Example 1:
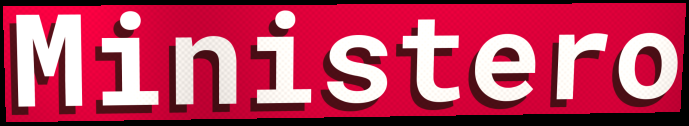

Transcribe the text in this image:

Ministero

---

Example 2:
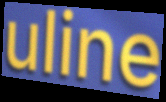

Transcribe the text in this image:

uline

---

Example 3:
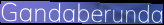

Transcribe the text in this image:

Gandaberunda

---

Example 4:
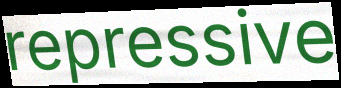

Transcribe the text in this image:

repressive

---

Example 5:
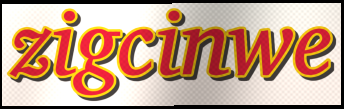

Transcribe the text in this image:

zigcinwe